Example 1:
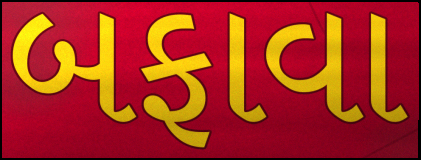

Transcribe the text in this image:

બફાવા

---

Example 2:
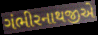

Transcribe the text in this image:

ગંભીરનાથજીએ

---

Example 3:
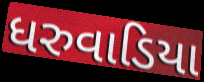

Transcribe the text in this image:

ધરુવાડિયા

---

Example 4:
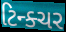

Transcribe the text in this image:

ટિન્ક્ચર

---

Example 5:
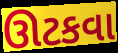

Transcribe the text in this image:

ઊટકવા